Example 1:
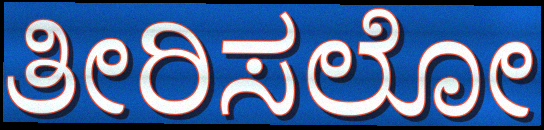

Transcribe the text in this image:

ತೀರಿಸಲೋ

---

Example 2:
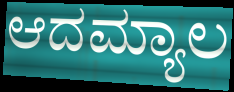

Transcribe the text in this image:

ಆದಮ್ಯಾಲ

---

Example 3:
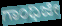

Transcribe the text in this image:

ಗಾಂಧಿಜೀ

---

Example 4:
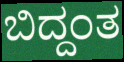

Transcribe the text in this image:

ಬಿದ್ದಂತ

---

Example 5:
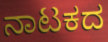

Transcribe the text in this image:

ನಾಟಕದ